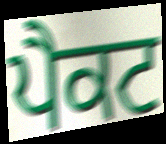
ਪੈਕਟ